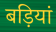
बड़ियां